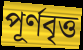
পূর্ণবৃত্ত